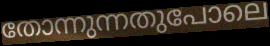
തോന്നുന്നതുപോലെ